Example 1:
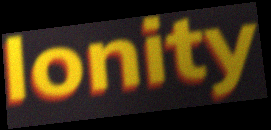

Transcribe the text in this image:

Ionity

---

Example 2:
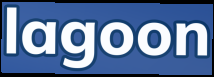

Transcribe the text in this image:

lagoon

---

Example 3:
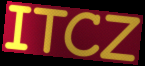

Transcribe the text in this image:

ITCZ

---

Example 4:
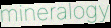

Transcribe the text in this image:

mineralogy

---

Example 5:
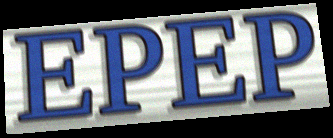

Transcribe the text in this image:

EPEP